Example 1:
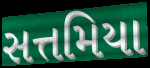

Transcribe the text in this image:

સત્તમિયા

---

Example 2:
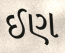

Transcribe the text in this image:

ઈણ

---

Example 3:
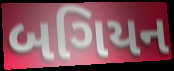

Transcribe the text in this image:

બગિયન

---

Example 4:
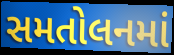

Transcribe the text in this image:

સમતોલનમાં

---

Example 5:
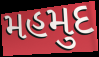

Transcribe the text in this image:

મહમુદ